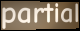
partial